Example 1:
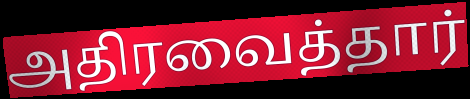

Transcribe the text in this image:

அதிரவைத்தார்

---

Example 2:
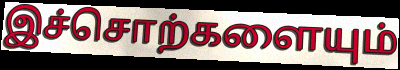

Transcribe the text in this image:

இச்சொற்களையும்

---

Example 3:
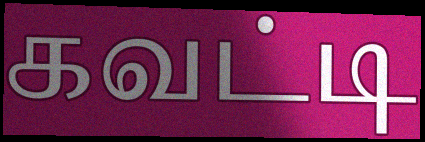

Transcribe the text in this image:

கவட்டி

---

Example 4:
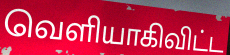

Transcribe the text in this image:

வெளியாகிவிட்ட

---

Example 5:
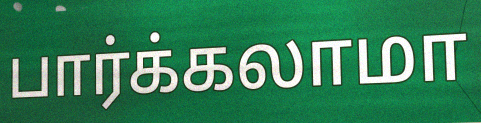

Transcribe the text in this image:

பார்க்கலாமா